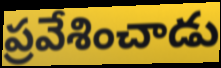
ప్రవేశించాడు